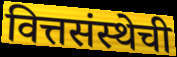
वित्तसंस्थेची